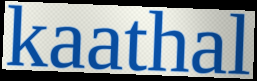
kaathal